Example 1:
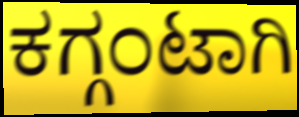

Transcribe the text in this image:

ಕಗ್ಗಂಟಾಗಿ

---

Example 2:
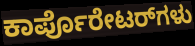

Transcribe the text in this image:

ಕಾರ್ಪೊರೇಟರ್‌ಗಳು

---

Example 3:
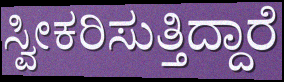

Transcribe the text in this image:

ಸ್ವೀಕರಿಸುತ್ತಿದ್ದಾರೆ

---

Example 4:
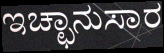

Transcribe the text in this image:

ಇಚ್ಛಾನುಸಾರ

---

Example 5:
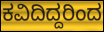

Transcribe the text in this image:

ಕವಿದಿದ್ದರಿಂದ